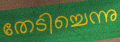
തേടിച്ചെന്നു